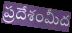
ప్రదేశంమీద